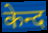
केन्द